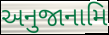
અનુજાનામિ